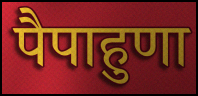
पैपाहुणा